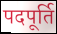
पदपूर्ति